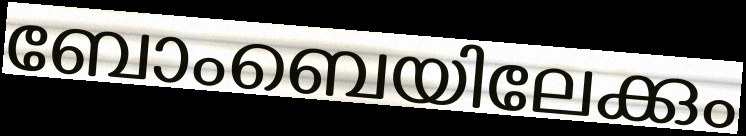
ബോംബെയിലേക്കും